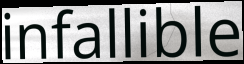
infallible